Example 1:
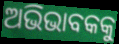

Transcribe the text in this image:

ଅଭିଭାବକକୁ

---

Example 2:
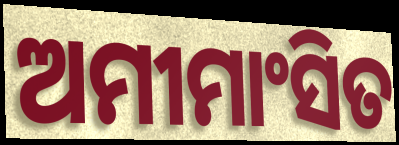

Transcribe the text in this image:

ଅମୀମାଂସିତ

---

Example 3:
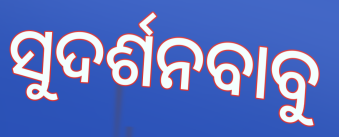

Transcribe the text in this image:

ସୁଦର୍ଶନବାବୁ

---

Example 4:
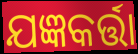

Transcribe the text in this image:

ଯଜ୍ଞକର୍ତ୍ତା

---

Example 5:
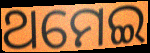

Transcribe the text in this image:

ଥମେଇ